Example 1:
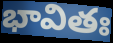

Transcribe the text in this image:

భావితః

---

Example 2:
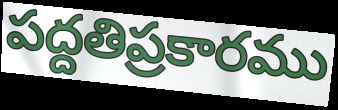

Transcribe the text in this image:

పద్దతిప్రకారము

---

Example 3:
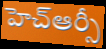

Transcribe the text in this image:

హెచ్ఆర్సీ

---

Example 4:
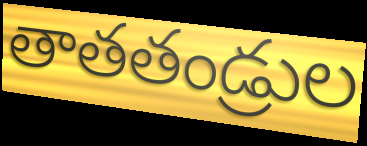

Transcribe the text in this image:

తాతతండ్రుల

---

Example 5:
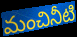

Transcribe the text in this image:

మంచినీటి